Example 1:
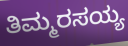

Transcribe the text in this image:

ತಿಮ್ಮರಸಯ್ಯ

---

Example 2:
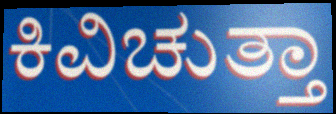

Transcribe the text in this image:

ಕಿವಿಚುತ್ತಾ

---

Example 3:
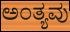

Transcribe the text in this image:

ಅಂತ್ಯವು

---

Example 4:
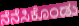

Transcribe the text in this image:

ನೆನೆಸಿಕೊಂಡು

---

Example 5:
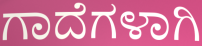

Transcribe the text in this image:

ಗಾದೆಗಳಾಗಿ